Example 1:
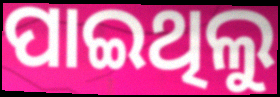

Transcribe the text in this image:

ପାଇଥିଲୁ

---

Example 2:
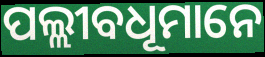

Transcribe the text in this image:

ପଲ୍ଲୀବଧୂମାନେ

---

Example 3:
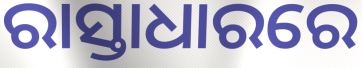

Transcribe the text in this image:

ରାସ୍ତାଧାରରେ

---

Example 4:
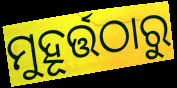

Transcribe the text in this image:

ମୁହୂର୍ତ୍ତଠାରୁ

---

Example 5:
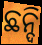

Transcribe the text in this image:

ଛନ୍ଦି